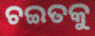
ଚଇତକୁ